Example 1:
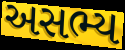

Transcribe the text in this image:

અસભ્ય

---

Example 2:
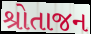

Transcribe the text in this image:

શ્રોતાજન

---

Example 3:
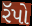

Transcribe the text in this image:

રૅપો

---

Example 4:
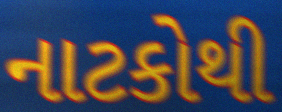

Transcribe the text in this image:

નાટકોથી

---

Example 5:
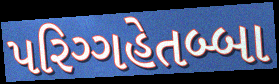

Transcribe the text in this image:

પરિગ્ગહેતબ્બા